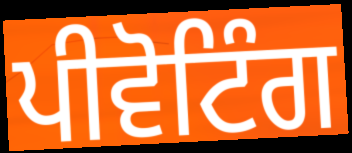
ਪੀਵੋਟਿੰਗ